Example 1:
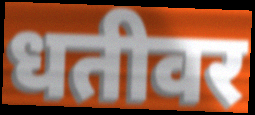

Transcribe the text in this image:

धतीवर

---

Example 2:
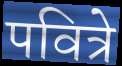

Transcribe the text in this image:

पवित्रे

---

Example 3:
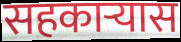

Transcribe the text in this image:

सहकार्‍यास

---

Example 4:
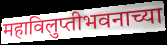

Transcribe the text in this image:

महाविलुप्तीभवनाच्या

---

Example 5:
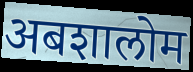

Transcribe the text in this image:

अबशालोम